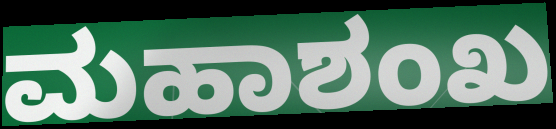
ಮಹಾಶಂಖ